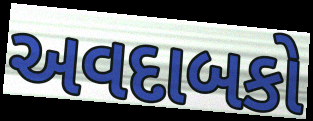
અવદાબકો